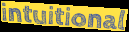
intuitional